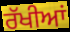
ਰੱਖੀਆਂ